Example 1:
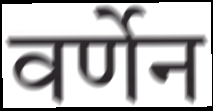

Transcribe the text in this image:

वर्णेन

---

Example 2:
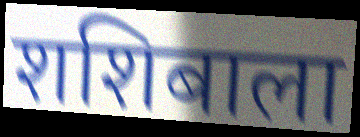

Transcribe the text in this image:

शशिबाला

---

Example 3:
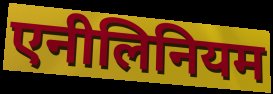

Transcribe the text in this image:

एनीलिनियम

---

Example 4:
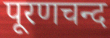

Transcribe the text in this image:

पूरणचन्द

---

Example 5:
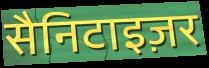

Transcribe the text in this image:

सैनिटाइज़र